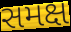
સમક્ષ